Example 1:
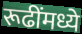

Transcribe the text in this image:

रूढींमध्ये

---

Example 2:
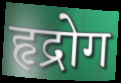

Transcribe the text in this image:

हृद्रोग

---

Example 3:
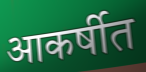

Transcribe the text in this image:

आकर्षीत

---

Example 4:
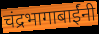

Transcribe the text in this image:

चंद्रभागाबाईंनी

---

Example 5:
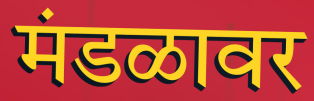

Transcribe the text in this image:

मंडळावर